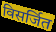
विसर्जित